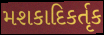
મશકાદિકર્તૃક